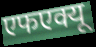
एफएक्यू